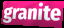
granite